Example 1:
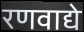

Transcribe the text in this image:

रणवाद्ये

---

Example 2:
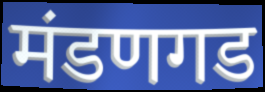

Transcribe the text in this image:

मंडणगड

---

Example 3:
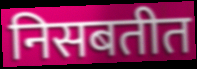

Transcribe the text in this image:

निसबतीत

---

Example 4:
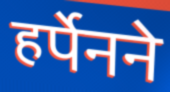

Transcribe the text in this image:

हर्पेनने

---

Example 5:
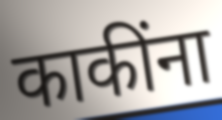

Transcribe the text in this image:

काकींना